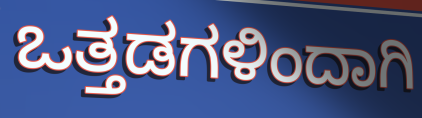
ಒತ್ತಡಗಳಿಂದಾಗಿ